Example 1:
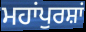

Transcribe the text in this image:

ਮਹਾਂਪੁਰਸ਼ਾਂ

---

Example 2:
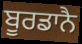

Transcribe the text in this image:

ਬੂਰਡਾਨੈ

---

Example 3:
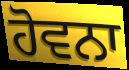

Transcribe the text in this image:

ਹੋਵਨਾ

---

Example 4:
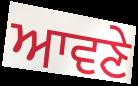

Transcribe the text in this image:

ਆਵਣੇ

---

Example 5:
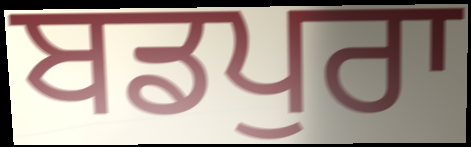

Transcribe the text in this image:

ਬਡਪੁਰਾ